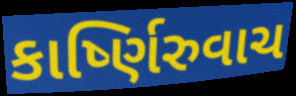
કાર્ષ્ણિરુવાચ